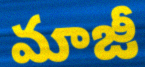
మాజీ